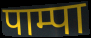
पाम्पा